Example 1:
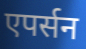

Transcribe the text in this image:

एपर्सन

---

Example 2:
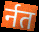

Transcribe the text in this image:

र्नत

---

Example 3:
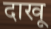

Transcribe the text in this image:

दाखू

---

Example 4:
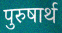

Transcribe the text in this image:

पुरुषार्थ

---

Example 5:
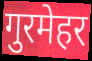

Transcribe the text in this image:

गुरमेहर